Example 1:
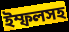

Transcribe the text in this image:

ইম্ফলসহ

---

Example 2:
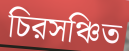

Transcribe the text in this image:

চিরসঞ্চিত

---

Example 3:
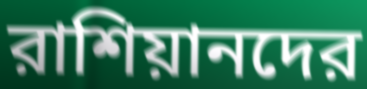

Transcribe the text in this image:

রাশিয়ানদের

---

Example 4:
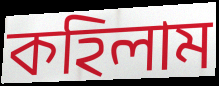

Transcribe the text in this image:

কহিলাম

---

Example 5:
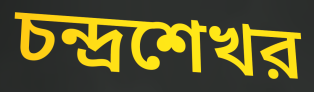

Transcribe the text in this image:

চন্দ্রশেখর